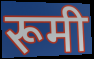
रूमी